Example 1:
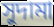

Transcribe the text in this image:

সুদামা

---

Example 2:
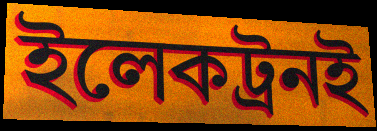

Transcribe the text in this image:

ইলেকট্রনই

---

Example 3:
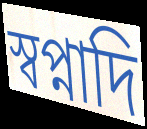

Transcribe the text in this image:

স্বপ্নাদি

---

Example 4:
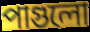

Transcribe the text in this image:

পাগুলো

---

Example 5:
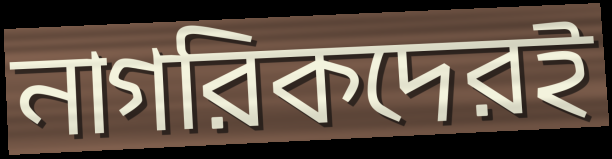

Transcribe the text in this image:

নাগরিকদেরই